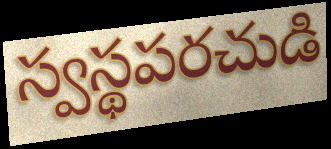
స్వస్థపరచుడి